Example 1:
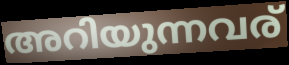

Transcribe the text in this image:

അറിയുന്നവര്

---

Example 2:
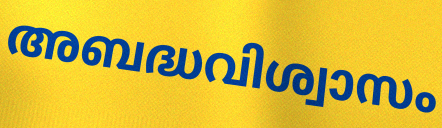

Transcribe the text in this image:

അബദ്ധവിശ്വാസം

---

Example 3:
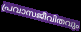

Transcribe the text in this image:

പ്രവാസജീവിതവും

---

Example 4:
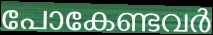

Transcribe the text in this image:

പോകേണ്ടവർ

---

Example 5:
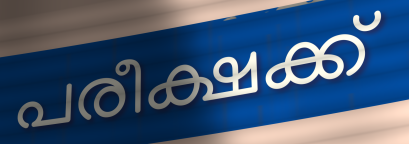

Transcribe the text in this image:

പരീക്ഷക്ക്